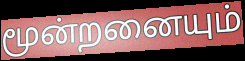
மூன்றனையும்